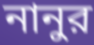
নানুর